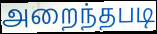
அறைந்தபடி